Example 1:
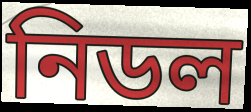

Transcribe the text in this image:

নিডল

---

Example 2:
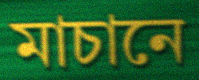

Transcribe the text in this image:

মাচানে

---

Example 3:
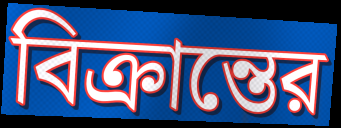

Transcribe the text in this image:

বিক্রান্তের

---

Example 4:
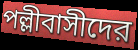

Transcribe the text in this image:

পল্লীবাসীদের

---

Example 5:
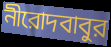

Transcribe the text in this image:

নীরোদবাবুর